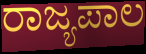
ರಾಜ್ಯಪಾಲ